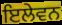
ਇਲੇਵਨ